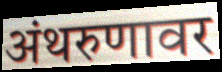
अंथरुणावर